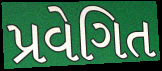
પ્રવેગિત